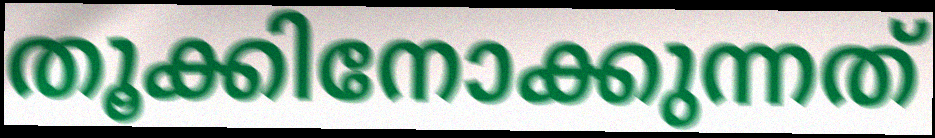
തൂക്കിനോക്കുന്നത്